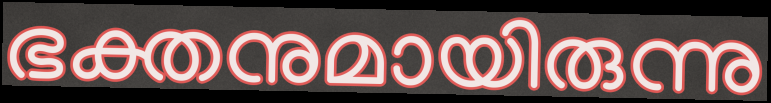
ഭക്തനുമായിരുന്നു